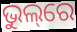
ଭୁଲ୍‌ରେ